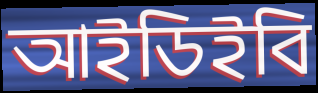
আইডিইবি